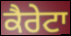
ਕੈਰੇਟਾ